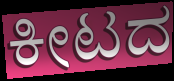
ಕೀಟದ